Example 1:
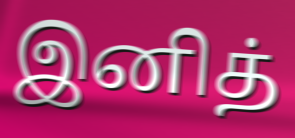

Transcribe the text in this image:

இனித்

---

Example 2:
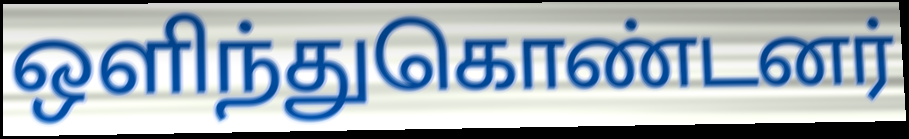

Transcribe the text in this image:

ஒளிந்துகொண்டனர்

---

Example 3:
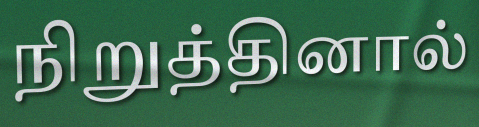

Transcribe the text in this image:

நிறுத்தினால்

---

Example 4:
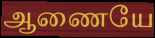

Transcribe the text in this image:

ஆணையே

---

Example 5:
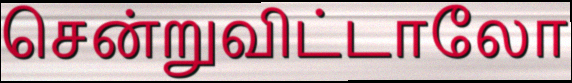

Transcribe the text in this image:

சென்றுவிட்டாலோ